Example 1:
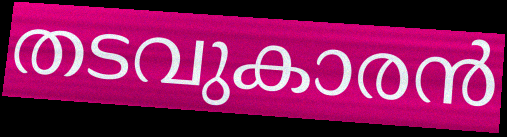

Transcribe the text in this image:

തടവുകാരൻ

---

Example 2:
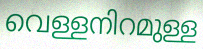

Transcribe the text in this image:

വെള്ളനിറമുള്ള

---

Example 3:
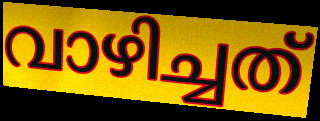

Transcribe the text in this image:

വാഴിച്ചത്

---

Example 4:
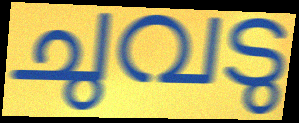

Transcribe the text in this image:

ചുവടു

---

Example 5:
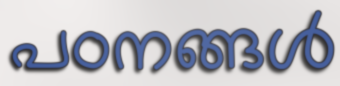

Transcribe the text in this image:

പഠനങ്ങൾ